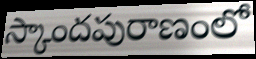
స్కాందపురాణంలో